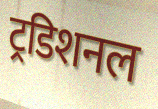
ट्रडिशनल